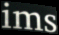
ims